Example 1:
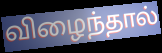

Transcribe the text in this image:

விழைந்தால்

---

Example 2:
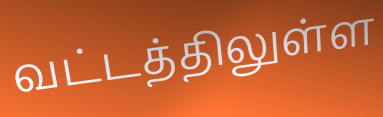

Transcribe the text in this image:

வட்டத்திலுள்ள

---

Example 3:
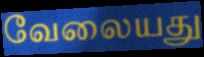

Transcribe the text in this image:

வேலையது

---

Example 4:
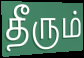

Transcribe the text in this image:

தீரும்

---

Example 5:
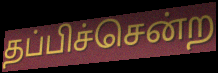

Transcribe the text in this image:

தப்பிச்சென்ற